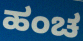
ಹಂಚ